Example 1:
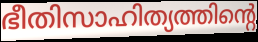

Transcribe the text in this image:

ഭീതിസാഹിത്യത്തിന്റെ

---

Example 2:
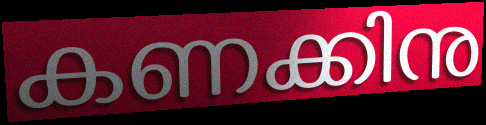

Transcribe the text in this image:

കണക്കിനു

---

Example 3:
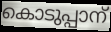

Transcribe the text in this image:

കൊടുപ്പാന്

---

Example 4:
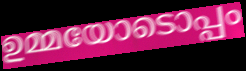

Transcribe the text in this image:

ഉമ്മയോടൊപ്പം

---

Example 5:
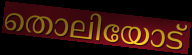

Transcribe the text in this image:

തൊലിയോട്